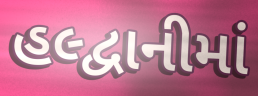
હલ્દ્વાનીમાં